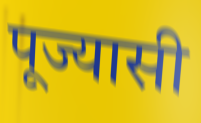
पूज्यासी